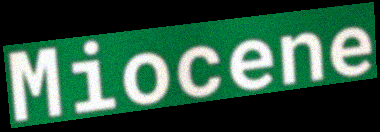
Miocene